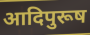
आदिपुरूष